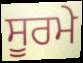
ਸੂਰਮੇ